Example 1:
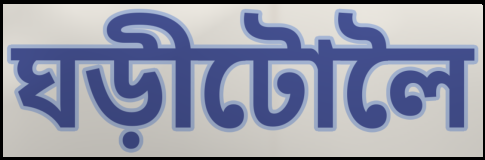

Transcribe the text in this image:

ঘড়ীটোলৈ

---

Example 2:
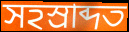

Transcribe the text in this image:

সহস্ৰাব্দত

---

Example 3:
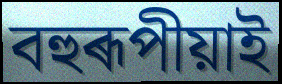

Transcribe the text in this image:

বহুৰূপীয়াই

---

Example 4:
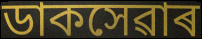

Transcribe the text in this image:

ডাকসেৱাৰ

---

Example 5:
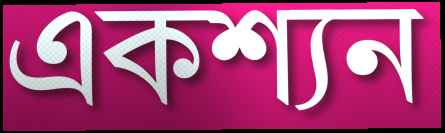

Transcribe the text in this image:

একশ্যন